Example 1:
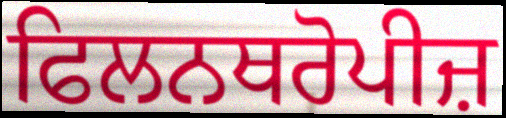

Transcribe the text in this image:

ਫਿਲਨਥਰੋਪੀਜ਼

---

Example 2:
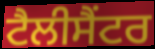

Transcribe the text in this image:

ਟੈਲੀਸੈਂਟਰ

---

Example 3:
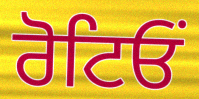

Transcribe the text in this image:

ਰੋਟਿਓਂ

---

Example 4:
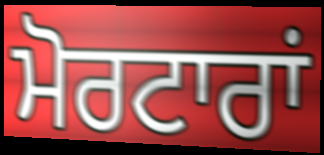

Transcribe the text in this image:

ਮੋਰਟਾਰਾਂ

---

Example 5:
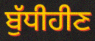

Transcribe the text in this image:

ਬੁੱਧੀਹੀਣ